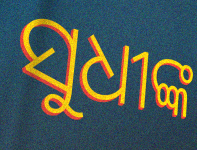
ସୁଧୀଙ୍କ